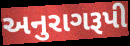
અનુરાગરૂપી